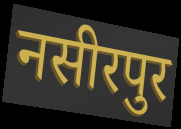
नसीरपुर